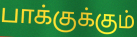
பாக்குக்கும்